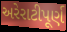
અરેરાટીપૂર્ણ